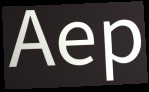
Aep